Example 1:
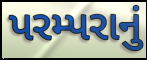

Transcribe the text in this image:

પરમ્પરાનું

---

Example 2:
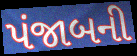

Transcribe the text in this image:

પંજાબની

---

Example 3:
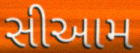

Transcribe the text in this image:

સીઆમ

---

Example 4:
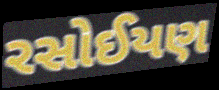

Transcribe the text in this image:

રસોઈયણ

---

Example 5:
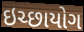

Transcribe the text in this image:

ઇચ્છાયોગ